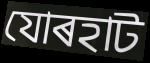
যোৰহাট